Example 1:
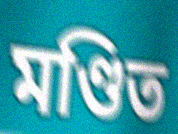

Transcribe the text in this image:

মণ্ডিত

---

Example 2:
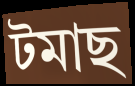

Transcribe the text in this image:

টমাছ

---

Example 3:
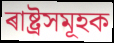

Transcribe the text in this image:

ৰাষ্ট্ৰসমূহক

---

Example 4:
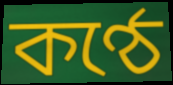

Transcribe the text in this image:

কণ্ঠে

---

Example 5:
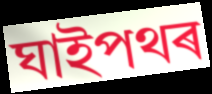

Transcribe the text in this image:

ঘাইপথৰ